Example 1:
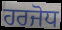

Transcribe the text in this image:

ਹਰਜੋਧ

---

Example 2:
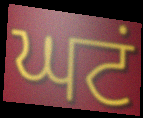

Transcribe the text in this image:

ਘਟਂ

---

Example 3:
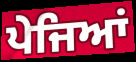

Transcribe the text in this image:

ਪੇਜਿਆਂ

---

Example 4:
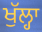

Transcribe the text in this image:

ਖੁੱਲ੍ਹਾ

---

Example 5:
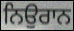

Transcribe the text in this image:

ਨਿਉਰਾਨ